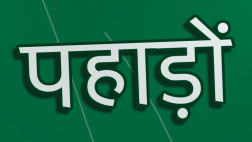
पहाड़ों